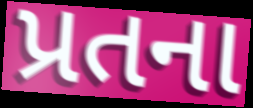
પ્રતના